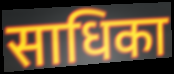
साधिका